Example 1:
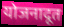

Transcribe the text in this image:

योजनादूत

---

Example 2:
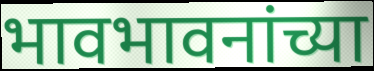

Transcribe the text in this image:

भावभावनांच्या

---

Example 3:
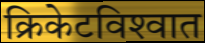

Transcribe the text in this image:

क्रिकेटविश्‍वात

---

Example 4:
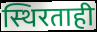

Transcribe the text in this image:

स्थिरताही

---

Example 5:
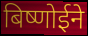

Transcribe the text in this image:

बिष्णोईने